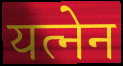
यत्नेन